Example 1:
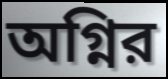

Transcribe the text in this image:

অগ্নির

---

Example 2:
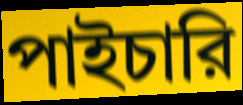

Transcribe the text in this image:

পাইচারি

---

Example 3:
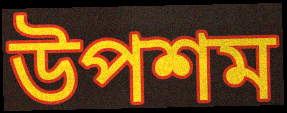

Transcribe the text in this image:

উপশম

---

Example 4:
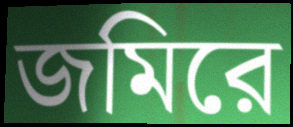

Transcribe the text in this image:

জমিরে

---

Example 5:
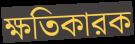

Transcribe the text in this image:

ক্ষতিকারক